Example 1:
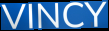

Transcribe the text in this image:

VINCY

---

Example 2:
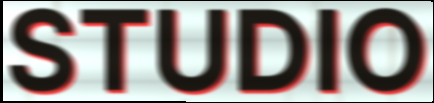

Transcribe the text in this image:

STUDIO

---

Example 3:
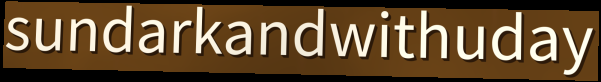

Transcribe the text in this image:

sundarkandwithuday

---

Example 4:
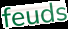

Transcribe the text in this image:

feuds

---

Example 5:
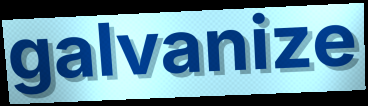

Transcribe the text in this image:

galvanize